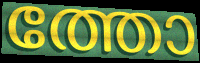
ത്തോ